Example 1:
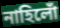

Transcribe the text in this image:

নাহিলোঁ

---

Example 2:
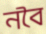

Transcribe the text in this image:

নবৈ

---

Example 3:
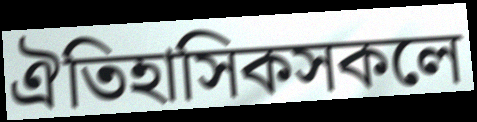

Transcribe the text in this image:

ঐতিহাসিকসকলে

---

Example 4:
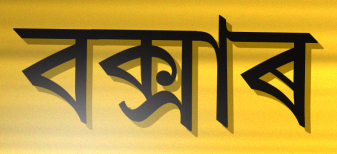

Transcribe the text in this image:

বক্সাৰ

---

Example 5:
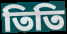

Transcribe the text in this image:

তিতি